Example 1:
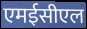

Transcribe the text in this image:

एमईसीएल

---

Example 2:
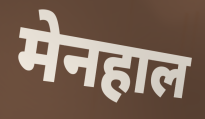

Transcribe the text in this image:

मेनहाल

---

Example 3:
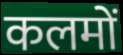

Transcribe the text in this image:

कलमों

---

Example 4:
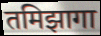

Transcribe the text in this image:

तमिझागा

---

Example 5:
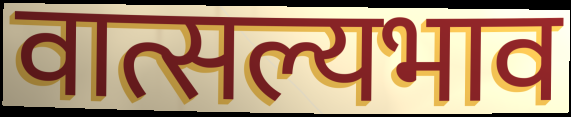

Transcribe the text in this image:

वात्सल्यभाव